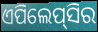
ଏପିଲେପ୍‌ସିର